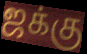
ஜக்கு